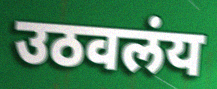
उठवलंय